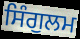
ਸਿੰਗੁਲਮ